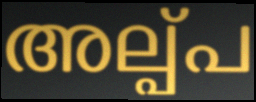
അല്പ്പ